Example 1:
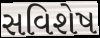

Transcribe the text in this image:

સવિશેષ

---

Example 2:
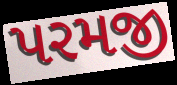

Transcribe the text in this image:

પરમજી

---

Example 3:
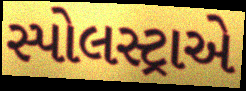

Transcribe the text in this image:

સ્પોલસ્ટ્રાએ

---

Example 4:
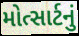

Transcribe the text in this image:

મોત્સાર્ટનું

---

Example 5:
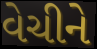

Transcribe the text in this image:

વેચીને